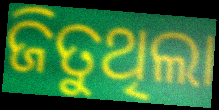
ଜିତୁଥିଲା